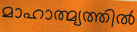
മാഹാത്മ്യത്തിൽ